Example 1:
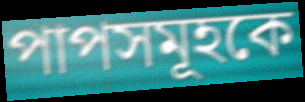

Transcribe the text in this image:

পাপসমূহকে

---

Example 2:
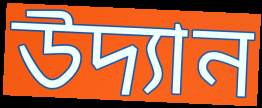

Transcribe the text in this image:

উদ্যান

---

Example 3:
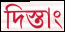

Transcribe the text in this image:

দিস্তাং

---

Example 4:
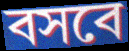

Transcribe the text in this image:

বসবে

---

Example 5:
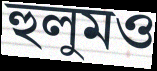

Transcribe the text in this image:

হুলুমও